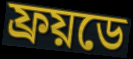
ফ্ৰয়ডে